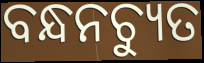
ବନ୍ଧନଚ୍ୟୁତ